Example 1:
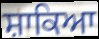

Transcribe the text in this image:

ਸ਼ਾਕਿਆ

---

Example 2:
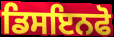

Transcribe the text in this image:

ਡਿਸਇਨਫੋ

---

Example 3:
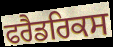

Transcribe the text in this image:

ਫਰੈਡਰਿਕਸ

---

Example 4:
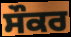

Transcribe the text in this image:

ਸੌਕਰ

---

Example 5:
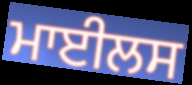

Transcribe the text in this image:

ਮਾਈਲਸ